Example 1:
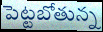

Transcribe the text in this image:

పెట్టబోతున్న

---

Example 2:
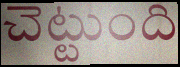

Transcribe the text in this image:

చెట్టుంది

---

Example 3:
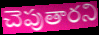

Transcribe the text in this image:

చెపుతారని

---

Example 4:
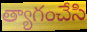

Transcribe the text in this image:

త్యాగంచేసి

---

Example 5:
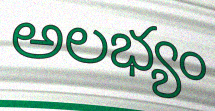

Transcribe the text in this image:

అలభ్యం